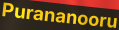
Purananooru